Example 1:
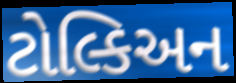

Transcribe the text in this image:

ટોલ્કિઅન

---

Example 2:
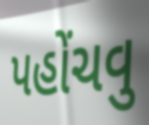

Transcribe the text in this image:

પહોંચવુ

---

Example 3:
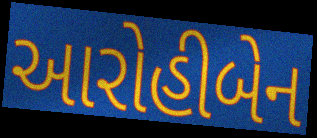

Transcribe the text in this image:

આરોહીબેન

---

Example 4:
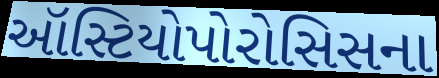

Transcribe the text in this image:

ઑસ્ટિયોપોરોસિસના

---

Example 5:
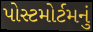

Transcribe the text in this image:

પોસ્ટમોર્ટમનું